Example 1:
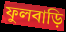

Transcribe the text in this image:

ফুলবাড়ি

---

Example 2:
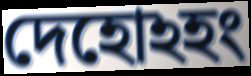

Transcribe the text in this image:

দেহোঽহং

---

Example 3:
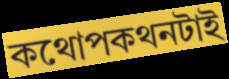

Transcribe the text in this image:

কথোপকথনটাই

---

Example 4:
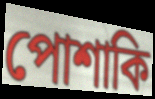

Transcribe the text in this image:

পোশাকি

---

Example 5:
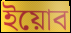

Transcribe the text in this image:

ইয়োব